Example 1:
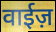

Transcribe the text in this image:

वाईज़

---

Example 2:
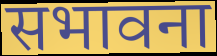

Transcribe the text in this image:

सभावना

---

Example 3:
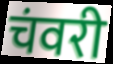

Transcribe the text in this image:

चंवरी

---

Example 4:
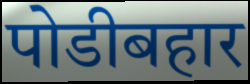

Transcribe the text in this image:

पोडीबहार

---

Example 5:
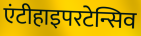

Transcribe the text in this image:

एंटीहाइपरटेन्सिव